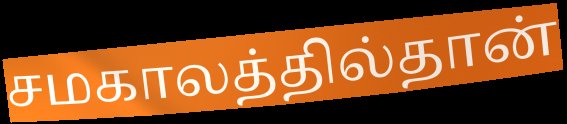
சமகாலத்தில்தான்